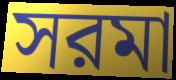
সরমা